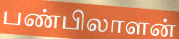
பண்பிலாளன்